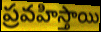
ప్రవహిస్తాయి